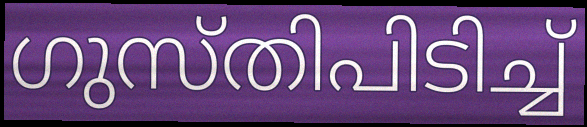
ഗുസ്തിപിടിച്ച്